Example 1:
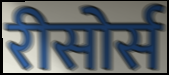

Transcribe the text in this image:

रीसोर्स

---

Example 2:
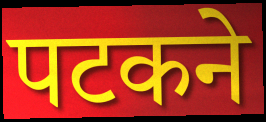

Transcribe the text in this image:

पटकने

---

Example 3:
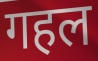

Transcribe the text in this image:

गहल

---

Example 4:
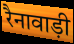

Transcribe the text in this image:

रैनावाड़ी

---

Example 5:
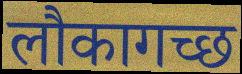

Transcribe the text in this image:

लौकागच्छ